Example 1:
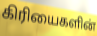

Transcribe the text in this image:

கிரியைகளின்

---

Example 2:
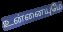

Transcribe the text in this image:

உன்னையுமே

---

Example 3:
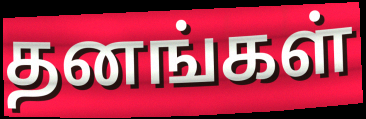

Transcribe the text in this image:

தனங்கள்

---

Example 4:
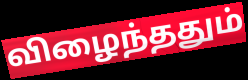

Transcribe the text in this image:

விழைந்ததும்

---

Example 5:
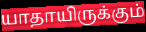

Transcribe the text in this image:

யாதாயிருக்கும்